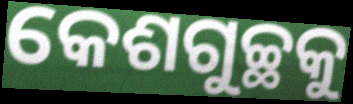
କେଶଗୁଚ୍ଛକୁ